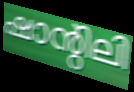
ഷാന്റിലി